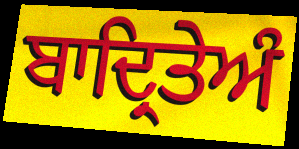
ਬਾਦ੍ਰਿਤੇਅੰ